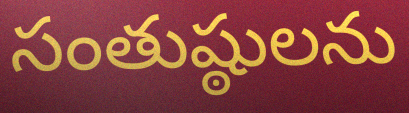
సంతుష్ఠులను